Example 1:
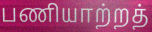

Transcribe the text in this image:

பணியாற்றத்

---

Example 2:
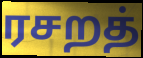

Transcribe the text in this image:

ரசறத்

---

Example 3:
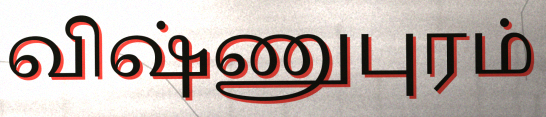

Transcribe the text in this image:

விஷ்ணுபுரம்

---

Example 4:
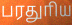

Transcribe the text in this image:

பரதுரிய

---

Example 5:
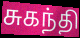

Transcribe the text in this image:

சுகந்தி